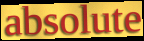
absolute